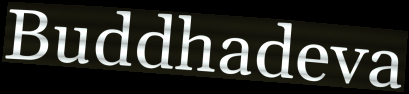
Buddhadeva